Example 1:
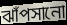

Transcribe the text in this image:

ঝাঁপসানো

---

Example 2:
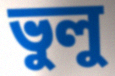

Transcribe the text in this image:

ভুলু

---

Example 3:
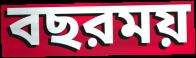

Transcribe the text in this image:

বছরময়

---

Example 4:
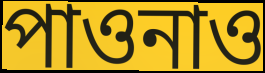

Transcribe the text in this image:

পাওনাও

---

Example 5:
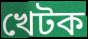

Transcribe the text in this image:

খেটক